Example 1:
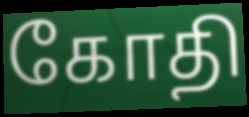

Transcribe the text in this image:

கோதி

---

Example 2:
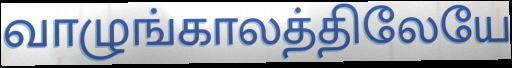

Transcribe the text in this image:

வாழுங்காலத்திலேயே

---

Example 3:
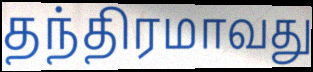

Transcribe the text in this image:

தந்திரமாவது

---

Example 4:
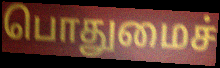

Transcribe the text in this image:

பொதுமைச்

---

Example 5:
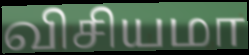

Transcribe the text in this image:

விசியமா